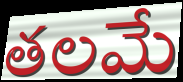
తలమే